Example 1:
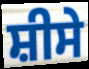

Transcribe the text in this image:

ਸ਼ੀਸੇ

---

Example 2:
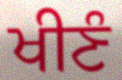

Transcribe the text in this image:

ਖੀਣੰ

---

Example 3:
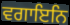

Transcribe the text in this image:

ਵਗਾਇਨਿ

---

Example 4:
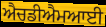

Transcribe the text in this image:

ਐਚਡੀਐਮਆਈ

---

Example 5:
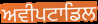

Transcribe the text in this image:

ਅਵੀਪਟਾਡਿਲ